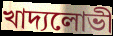
খাদ্যলোভী